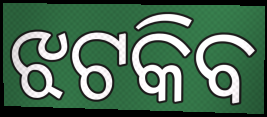
ଝଟକିବ